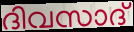
ദിവസാദ്